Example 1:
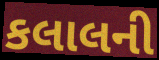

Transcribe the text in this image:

કલાલની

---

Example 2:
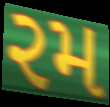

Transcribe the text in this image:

રમ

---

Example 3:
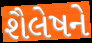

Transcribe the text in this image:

શૈલેષને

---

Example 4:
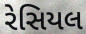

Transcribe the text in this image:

રેસિયલ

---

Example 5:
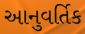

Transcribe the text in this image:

આનુવર્તિક